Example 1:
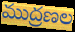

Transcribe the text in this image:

ముద్రణల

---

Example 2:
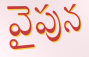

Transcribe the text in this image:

వైపున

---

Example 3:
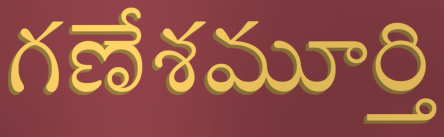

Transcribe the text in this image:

గణేశమూర్తి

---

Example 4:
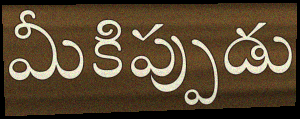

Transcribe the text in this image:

మీకిప్పుడు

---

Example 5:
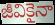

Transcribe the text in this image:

జీవికైనా